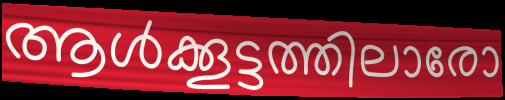
ആൾക്കൂട്ടത്തിലാരോ